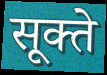
सूक्ते